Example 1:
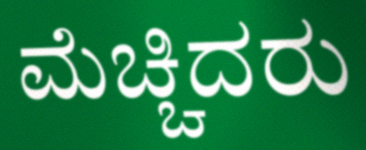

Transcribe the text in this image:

ಮೆಚ್ಚಿದರು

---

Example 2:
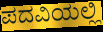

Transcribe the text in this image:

ಪದವಿಯಲ್ಲಿ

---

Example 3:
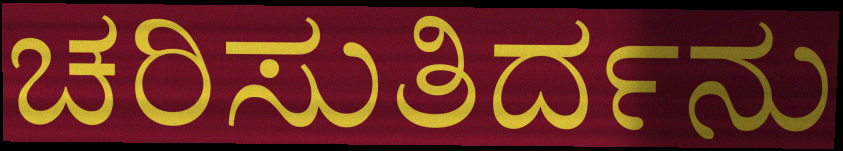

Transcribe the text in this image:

ಚರಿಸುತಿರ್ದನು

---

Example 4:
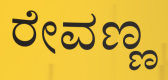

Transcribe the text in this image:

ರೇವಣ್ಣ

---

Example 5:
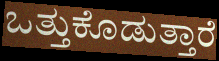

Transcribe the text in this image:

ಒತ್ತುಕೊಡುತ್ತಾರೆ